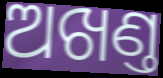
ଅଖଣ୍ତ